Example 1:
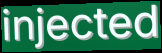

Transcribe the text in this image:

injected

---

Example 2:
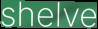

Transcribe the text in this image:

shelve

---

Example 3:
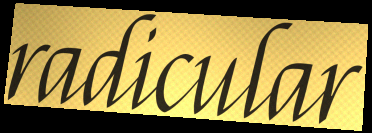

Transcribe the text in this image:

radicular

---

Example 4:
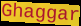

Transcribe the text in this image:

Ghaggar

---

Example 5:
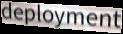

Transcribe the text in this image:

deployment